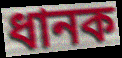
ধানক